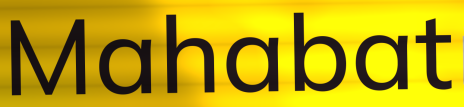
Mahabat